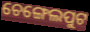
ଚେଙ୍ଗେଲପୁଟ